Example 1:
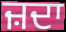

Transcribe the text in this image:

ਜ਼ਦਾ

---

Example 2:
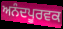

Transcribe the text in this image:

ਅਨੰਦਪੂਰਵਕ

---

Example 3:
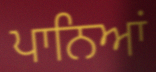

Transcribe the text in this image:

ਪਾਨਿਆਂ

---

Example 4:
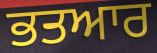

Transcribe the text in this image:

ਭਤਆਰ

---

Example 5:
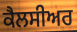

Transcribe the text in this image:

ਕੈਲਸੀਅਰ